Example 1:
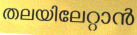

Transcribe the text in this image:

തലയിലേറ്റാൻ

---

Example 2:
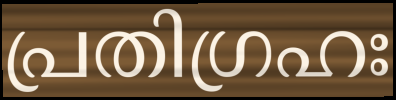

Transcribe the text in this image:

പ്രതിഗ്രഹഃ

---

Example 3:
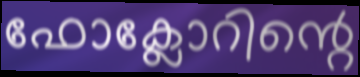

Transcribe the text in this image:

ഫോക്ലോറിന്റെ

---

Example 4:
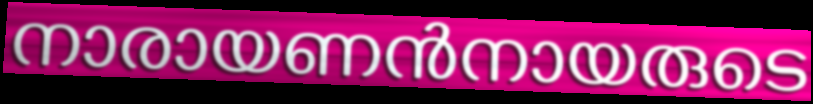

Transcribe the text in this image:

നാരായണൻനായരുടെ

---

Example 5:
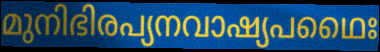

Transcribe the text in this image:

മുനിഭിരപ്യനവാഷ്യപഥൈഃ